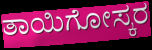
ತಾಯಿಗೋಸ್ಕರ